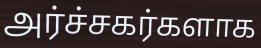
அர்ச்சகர்களாக